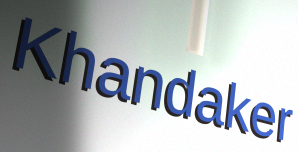
Khandaker